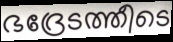
ഭദ്രേടത്തീടെ